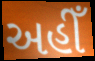
અહીઁ